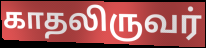
காதலிருவர்